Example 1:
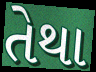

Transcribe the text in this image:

તેથા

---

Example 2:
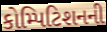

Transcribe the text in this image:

કોમ્પિટિશનની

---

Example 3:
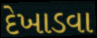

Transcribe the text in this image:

દેખાડવા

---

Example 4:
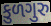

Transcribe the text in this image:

કુળગુરુ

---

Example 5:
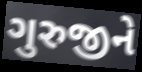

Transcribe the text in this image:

ગુરુજીને